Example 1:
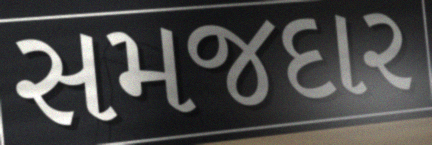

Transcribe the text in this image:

સમજદાર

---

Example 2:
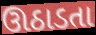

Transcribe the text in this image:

ઊઠાડતા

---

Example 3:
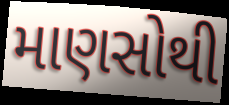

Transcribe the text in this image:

માણસોથી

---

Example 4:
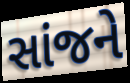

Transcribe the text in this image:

સાંજને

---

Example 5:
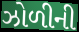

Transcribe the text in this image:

ઝોળીની